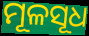
ମୂଳସୂଧ